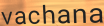
vachana